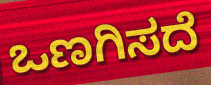
ಒಣಗಿಸದೆ